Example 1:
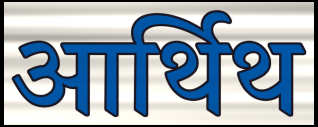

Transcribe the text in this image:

आर्थिथ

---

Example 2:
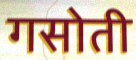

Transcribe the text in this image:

गसोती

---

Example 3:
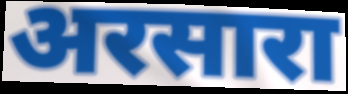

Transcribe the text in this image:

अरसारा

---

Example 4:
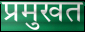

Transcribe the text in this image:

प्रमुखत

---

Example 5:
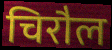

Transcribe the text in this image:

चिरौल